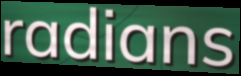
radians